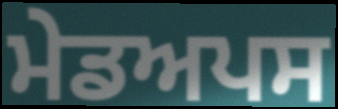
ਮੇਡਅਪਸ